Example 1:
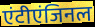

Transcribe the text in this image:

एंटीएंजिनल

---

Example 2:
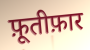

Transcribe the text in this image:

फ़ूतीफ़ार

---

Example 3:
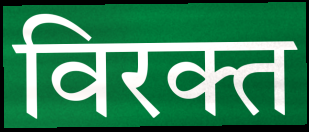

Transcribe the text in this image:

विरक्त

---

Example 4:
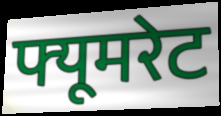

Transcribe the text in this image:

फ्यूमरेट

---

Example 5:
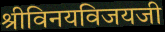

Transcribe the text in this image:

श्रीविनयविजयजी